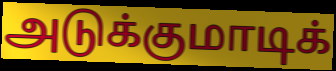
அடுக்குமாடிக்